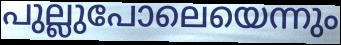
പുല്ലുപോലെയെന്നും